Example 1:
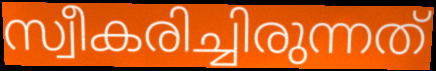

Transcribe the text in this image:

സ്വീകരിച്ചിരുന്നത്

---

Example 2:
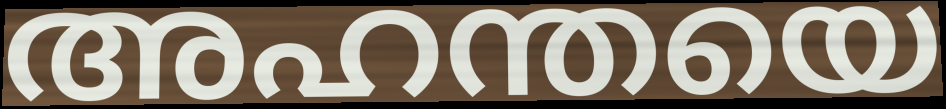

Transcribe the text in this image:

അഹന്തയെ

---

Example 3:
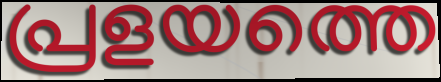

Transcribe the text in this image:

പ്രളയത്തെ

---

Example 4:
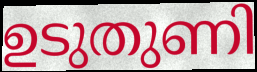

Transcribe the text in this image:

ഉടുതുണി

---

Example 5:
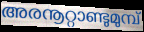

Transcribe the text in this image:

അരനൂറ്റാണ്ടുമുമ്പ്